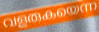
വളരുകയെന്ന